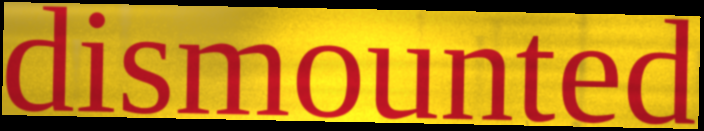
dismounted